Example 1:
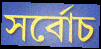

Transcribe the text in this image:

সৰ্বোচ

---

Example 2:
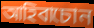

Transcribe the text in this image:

আহিবাচোন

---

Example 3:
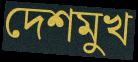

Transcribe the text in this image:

দেশমুখ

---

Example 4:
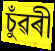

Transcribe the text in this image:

চুঁৱৰী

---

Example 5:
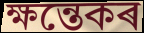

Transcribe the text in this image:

ক্ষন্তেকৰ